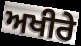
ਅਖੀਰੇ